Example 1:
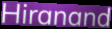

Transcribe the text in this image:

Hiranand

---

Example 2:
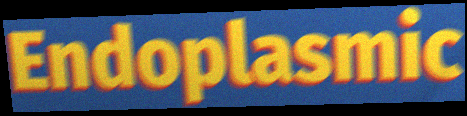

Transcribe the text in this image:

Endoplasmic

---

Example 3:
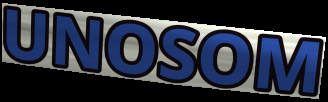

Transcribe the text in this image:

UNOSOM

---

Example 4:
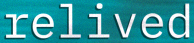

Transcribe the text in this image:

relived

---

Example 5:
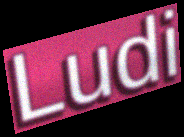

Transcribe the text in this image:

Ludi